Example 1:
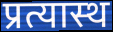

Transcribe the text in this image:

प्रत्यास्थ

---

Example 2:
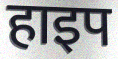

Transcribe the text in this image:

हाइप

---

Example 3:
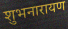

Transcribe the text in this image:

शुभनारायण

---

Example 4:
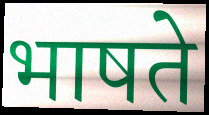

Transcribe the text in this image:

भाषते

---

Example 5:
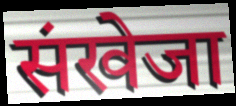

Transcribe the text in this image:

संखेजा